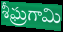
శీఘ్రగామి